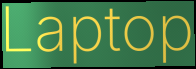
Laptop